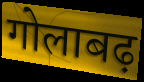
गोलाबढ़